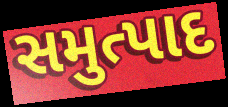
સમુત્પાદ